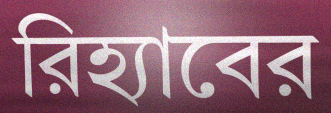
রিহ্যাবের